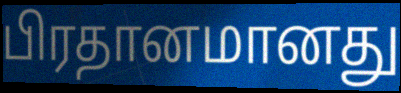
பிரதானமானது